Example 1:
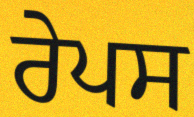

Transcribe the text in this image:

ਰੇਪਸ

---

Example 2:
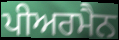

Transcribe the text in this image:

ਪੀਅਰਮੈਨ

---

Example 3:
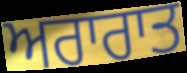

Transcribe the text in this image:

ਅਰਾਰਾਤ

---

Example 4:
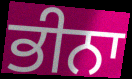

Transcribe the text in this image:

ਭੀਨਾ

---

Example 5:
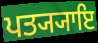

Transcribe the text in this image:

ਪਤ੍ਯ੍ਯਾਇ